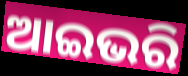
ଆଇଭରି